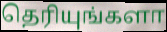
தெரியுங்களா